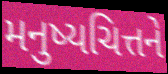
મનુષ્યચિત્તને